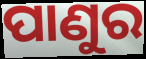
ପାଣୁର